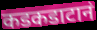
कडकडाटानं